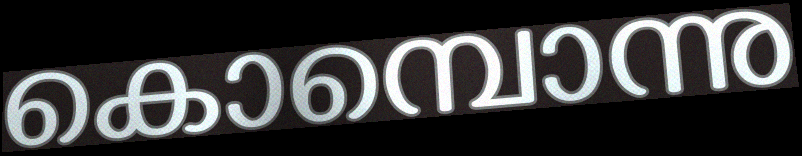
കൊമ്പൊന്നു